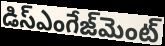
డిస్ఎంగేజ్‌మెంట్